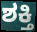
ಶಕ್ತಿ